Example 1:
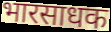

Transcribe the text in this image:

भारसाधक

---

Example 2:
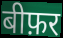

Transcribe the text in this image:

बीफ़र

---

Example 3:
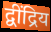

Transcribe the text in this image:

द्वींद्रिय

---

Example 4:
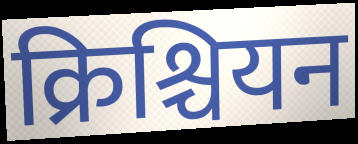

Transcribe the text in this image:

क्रिश्चियन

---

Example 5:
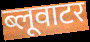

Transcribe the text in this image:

ब्लूवाटर